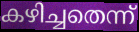
കഴിച്ചതെന്ന്